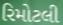
રિમોટલી